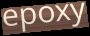
epoxy